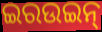
ଇରଉଇନ୍